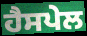
ਹੈਸਪੇਲ